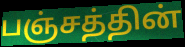
பஞ்சத்தின்